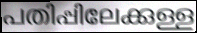
പതിപ്പിലേക്കുള്ള